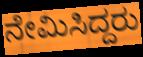
ನೇಮಿಸಿದ್ದರು